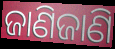
ଜାଣିଜାଣି